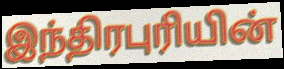
இந்திரபுரியின்